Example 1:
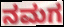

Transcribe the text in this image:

ನಮಗ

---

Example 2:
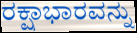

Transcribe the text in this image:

ರಕ್ಷಾಭಾರವನ್ನು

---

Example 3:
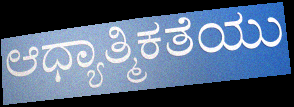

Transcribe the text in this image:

ಆಧ್ಯಾತ್ಮಿಕತೆಯು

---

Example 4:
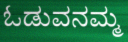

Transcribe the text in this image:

ಓಡುವನಮ್ಮ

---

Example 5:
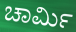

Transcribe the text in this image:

ಚಾರ್ಮಿ